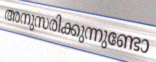
അനുസരിക്കുന്നുണ്ടോ